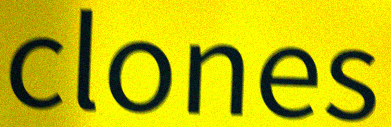
clones